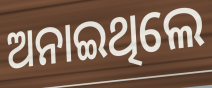
ଅନାଇଥିଲେ